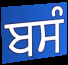
ਬਸੰ